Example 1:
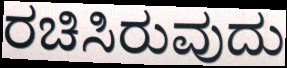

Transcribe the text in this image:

ರಚಿಸಿರುವುದು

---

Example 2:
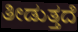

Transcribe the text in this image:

ತೀಡುತ್ತದೆ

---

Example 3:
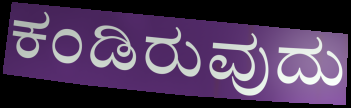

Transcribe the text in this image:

ಕಂಡಿರುವುದು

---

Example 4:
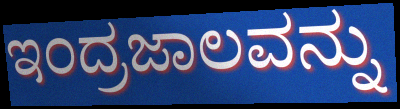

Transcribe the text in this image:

ಇಂದ್ರಜಾಲವನ್ನು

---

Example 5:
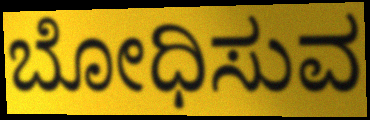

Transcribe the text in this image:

ಬೋಧಿಸುವ